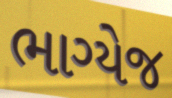
ભાગ્યેજ